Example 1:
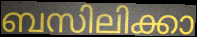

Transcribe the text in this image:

ബസിലിക്കാ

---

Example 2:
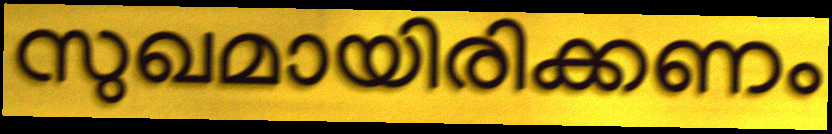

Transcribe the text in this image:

സുഖമായിരിക്കണം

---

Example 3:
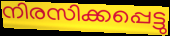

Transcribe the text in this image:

നിരസിക്കപ്പെട്ടു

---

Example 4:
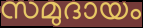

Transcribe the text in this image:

സമുദായം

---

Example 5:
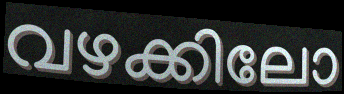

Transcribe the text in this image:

വഴക്കിലോ